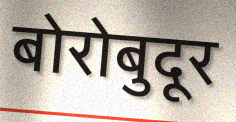
बोरोबुदूर